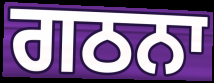
ਗਠਨਾ